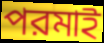
পরমাই